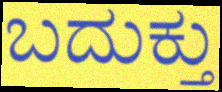
ಬದುಕ್ತು